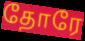
தோரே